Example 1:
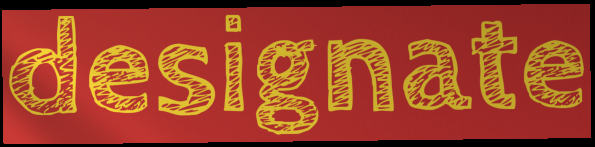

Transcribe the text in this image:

designate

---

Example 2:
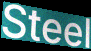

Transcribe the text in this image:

Steel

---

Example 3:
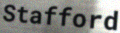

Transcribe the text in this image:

Stafford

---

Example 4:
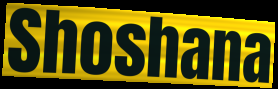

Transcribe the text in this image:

Shoshana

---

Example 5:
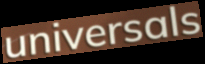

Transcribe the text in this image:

universals